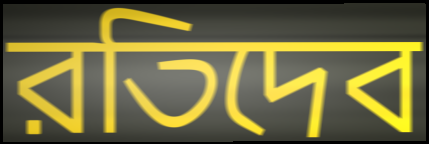
রতিদেব